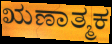
ಋಣಾತ್ಮಕ